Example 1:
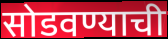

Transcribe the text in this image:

सोडवण्याची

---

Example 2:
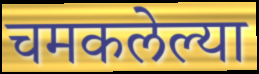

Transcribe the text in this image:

चमकलेल्या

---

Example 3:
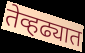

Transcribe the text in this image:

तेव्हढ्यात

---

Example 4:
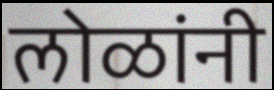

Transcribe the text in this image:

लोळांनी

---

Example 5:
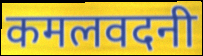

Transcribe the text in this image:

कमलवदनी